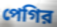
পেগির